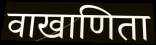
वाखाणिता